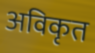
अविकृत